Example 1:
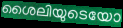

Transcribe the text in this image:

ശൈലിയുടെയോ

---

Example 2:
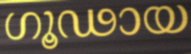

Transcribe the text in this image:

ഗൂഢായ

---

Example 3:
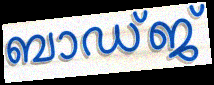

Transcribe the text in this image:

ബാഡ്ജ്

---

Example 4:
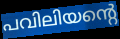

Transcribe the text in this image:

പവിലിയന്റെ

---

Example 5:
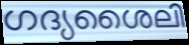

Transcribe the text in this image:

ഗദ്യശൈലി